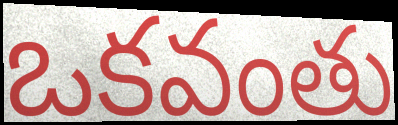
ఒకవంతు